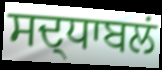
ਸਦ੍ਧਾਬਲਂ